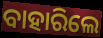
ବାହାରିଲେ